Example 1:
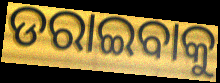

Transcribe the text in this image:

ଡରାଇବାକୁ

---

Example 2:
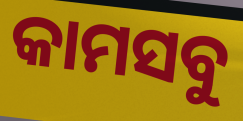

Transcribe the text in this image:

କାମସବୁ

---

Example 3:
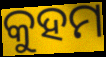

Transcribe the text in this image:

କୁହମ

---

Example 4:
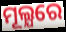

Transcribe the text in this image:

ମୂଲ୍ଯରେ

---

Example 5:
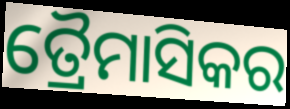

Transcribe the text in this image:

ତ୍ରୈମାସିକର